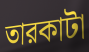
তারকাটা